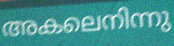
അകലെനിന്നു